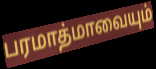
பரமாத்மாவையும்